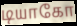
டியாகோ